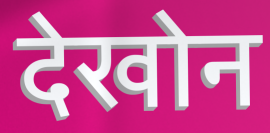
देखोन